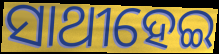
ସାଥୀହେଇ